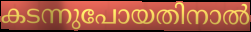
കടന്നുപോയതിനാൽ